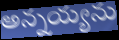
అన్నయ్యను